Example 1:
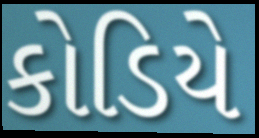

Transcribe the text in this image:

કોડિયે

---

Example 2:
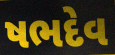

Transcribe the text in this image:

ષભદેવ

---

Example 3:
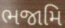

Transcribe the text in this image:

ભજામિ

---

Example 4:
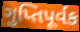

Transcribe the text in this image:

ગુપ્તિપૂર્વક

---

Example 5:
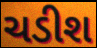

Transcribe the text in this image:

ચડીશ